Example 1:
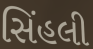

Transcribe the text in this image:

સિંહલી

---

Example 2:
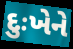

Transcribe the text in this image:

દુઃખેને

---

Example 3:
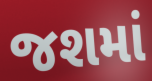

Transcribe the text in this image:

જશમાં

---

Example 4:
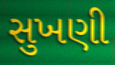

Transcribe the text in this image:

સુખણી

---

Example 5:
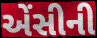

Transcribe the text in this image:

એંસીની